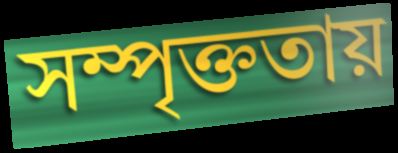
সম্পৃক্ততায়